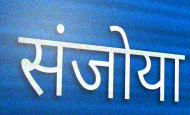
संजोया